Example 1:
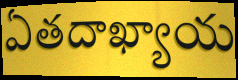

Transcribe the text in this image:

ఏతదాఖ్యాయ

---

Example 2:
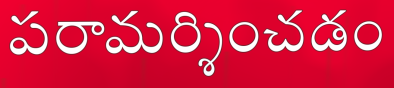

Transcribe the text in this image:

పరామర్శించడం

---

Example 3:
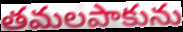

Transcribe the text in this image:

తమలపాకును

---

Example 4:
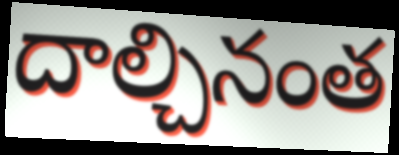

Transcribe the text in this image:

దాల్చినంత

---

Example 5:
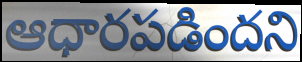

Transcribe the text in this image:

ఆధారపడిందని